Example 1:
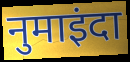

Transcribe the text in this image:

नुमाइंदा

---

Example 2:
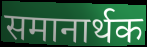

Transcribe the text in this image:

समानार्थक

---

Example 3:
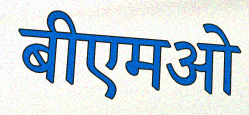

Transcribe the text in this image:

बीएमओ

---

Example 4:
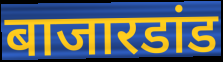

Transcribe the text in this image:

बाजारडांड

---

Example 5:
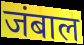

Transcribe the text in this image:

जंबाल